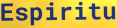
Espiritu